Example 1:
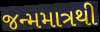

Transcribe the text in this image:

જન્મમાત્રથી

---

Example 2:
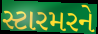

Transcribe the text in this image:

સ્ટારમરને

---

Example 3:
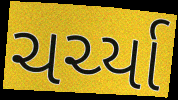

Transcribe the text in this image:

ચર્ચ્યા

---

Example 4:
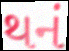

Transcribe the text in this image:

થનં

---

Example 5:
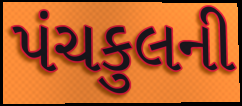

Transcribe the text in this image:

પંચકુલની